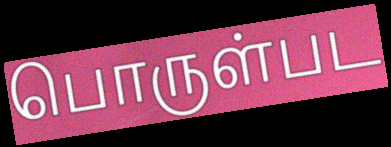
பொருள்பட